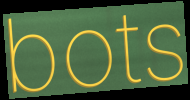
bots